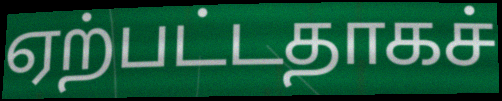
ஏற்பட்டதாகச்